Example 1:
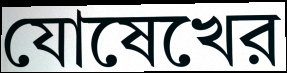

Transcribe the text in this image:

যোষেখের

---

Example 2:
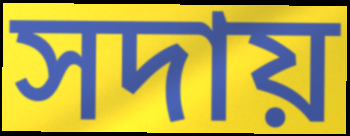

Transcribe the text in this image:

সদায়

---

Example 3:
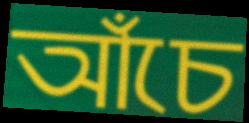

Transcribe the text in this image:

আঁচে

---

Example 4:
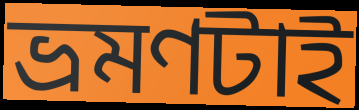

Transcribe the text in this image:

ভ্রমণটাই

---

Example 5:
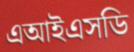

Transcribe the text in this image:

এআইএসডি